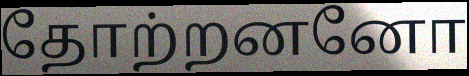
தோற்றனனோ